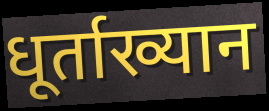
धूर्ताख्यान